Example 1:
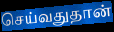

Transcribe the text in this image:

செய்வதுதான்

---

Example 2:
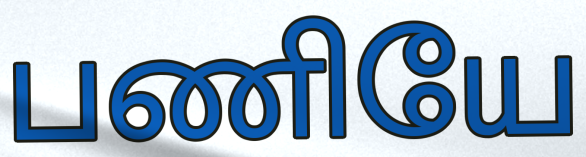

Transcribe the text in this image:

பணியே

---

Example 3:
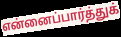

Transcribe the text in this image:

என்னைப்பார்த்துக்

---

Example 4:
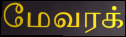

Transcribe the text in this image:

மேவரக்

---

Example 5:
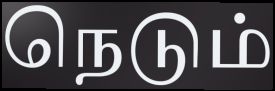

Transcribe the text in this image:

நெடும்